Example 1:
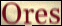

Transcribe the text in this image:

Ores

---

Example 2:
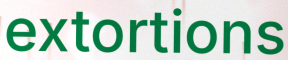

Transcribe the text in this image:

extortions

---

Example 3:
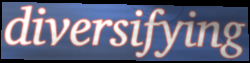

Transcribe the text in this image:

diversifying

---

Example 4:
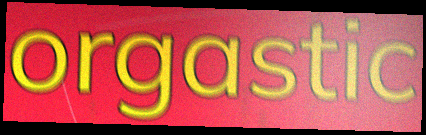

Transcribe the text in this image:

orgastic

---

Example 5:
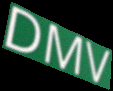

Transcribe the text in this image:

DMV